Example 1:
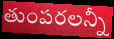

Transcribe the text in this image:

తుంపరలన్నీ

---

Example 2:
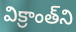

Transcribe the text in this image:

విక్రాంత్‌ని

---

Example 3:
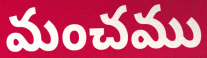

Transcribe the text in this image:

మంచము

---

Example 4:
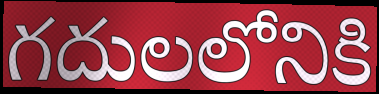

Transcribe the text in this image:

గదులలోనికి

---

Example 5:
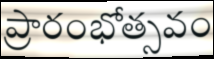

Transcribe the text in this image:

ప్రారంభోత్సవం